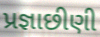
પ્રજ્ઞાછીણી